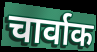
चार्वाक